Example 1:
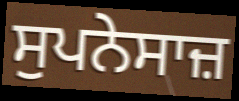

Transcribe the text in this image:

ਸੁਪਨੇਸਾਜ਼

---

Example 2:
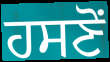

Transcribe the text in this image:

ਹਸਣੋਂ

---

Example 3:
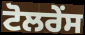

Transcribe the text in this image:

ਟੋਲਰੇਂਸ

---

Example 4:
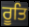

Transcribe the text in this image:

ਰੂਤਿ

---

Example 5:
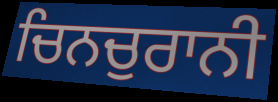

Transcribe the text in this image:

ਚਿਨਚੁਰਾਨੀ